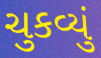
ચુકવ્યું